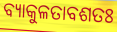
ବ୍ୟାକୁଳତାବଶତଃ